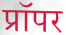
प्रॉपर